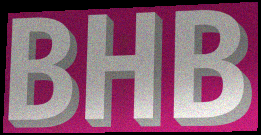
BHB